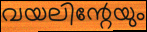
വയലിന്റേയും